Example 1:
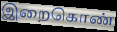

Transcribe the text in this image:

இறைகொண்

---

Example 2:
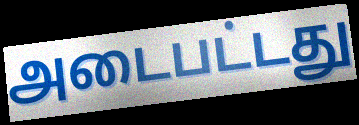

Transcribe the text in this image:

அடைபட்டது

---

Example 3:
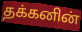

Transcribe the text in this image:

தக்கனின்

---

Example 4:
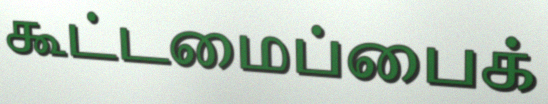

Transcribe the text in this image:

கூட்டமைப்பைக்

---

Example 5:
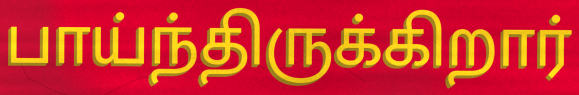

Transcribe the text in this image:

பாய்ந்திருக்கிறார்